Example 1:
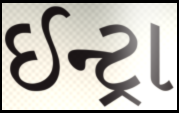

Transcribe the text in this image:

ઈન્ટ્રા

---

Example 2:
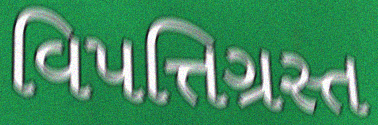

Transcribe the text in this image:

વિપત્તિગ્રસ્ત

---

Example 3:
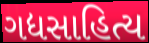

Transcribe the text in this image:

ગદ્યસાહિત્ય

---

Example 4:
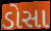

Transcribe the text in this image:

ડોસા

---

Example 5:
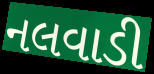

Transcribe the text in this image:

નલવાડી